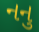
નનુ